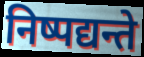
निष्पद्यन्ते